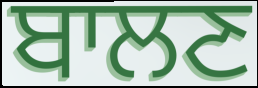
ਬਾਲਣ